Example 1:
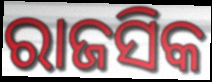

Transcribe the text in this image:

ରାଜସିକ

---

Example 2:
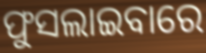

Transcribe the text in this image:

ଫୁସଲାଇବାରେ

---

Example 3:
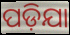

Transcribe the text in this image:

ପଡ଼ିଯା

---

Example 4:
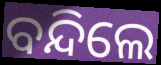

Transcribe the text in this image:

ବନ୍ଦିଲେ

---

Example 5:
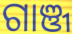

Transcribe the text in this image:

ଗାଞ୍ଜ